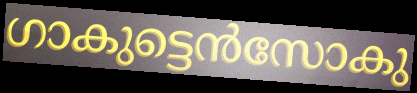
ഗാകുട്ടെൻസോകു